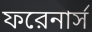
ফরেনার্স